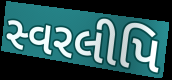
સ્વરલીપિ